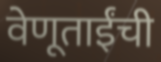
वेणूताईंची